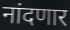
नांदणार